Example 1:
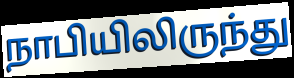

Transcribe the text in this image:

நாபியிலிருந்து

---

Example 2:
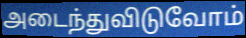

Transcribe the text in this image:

அடைந்துவிடுவோம்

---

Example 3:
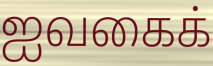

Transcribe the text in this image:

ஐவகைக்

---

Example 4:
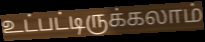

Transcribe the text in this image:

உட்பட்டிருக்கலாம்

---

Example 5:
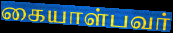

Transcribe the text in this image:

கையாள்பவர்